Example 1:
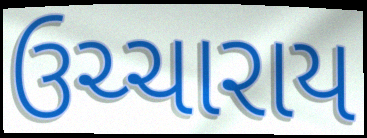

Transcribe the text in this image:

ઉચ્ચારાય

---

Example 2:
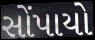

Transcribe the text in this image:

સોંપાયો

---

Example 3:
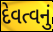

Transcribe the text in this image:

દેવત્વનું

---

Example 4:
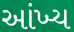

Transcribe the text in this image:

આંખ્ય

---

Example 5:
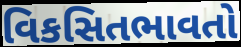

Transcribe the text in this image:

વિકસિતભાવતો